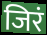
जिरं